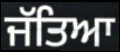
ਜੱਤਿਆ